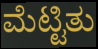
ಮೆಟ್ಟಿತು